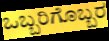
ಒಬ್ಬರಿಗೊಬ್ಬರ